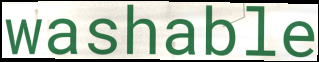
washable